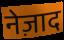
नेज़ाद